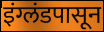
इंग्लंडपासून